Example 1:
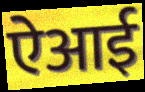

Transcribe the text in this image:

ऐआई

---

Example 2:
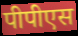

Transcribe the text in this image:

पीपीएस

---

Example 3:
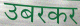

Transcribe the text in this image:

उबरकर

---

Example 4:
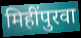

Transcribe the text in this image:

मिहींपुरवा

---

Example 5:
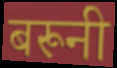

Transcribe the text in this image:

बरूनी